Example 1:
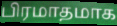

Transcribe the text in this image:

பிரமாதமாக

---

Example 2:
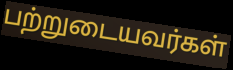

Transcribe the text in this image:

பற்றுடையவர்கள்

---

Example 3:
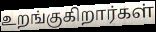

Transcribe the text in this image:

உறங்குகிறார்கள்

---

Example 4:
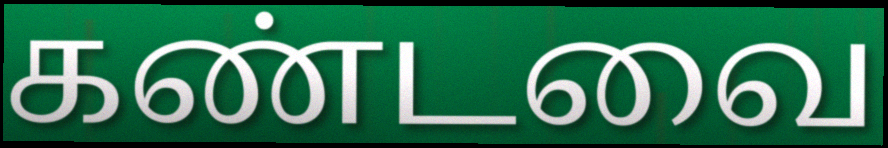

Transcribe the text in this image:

கண்டவை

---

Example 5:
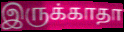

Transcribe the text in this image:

இருக்காதா